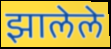
झालेले